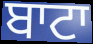
ਬਾਟਾ